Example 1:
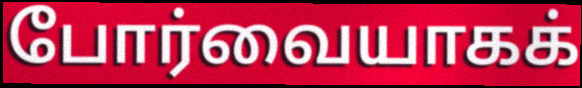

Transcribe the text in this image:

போர்வையாகக்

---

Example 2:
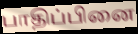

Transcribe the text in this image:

பாதிப்பினை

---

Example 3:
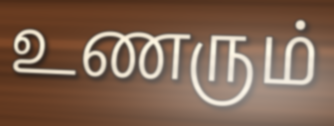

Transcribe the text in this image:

உணரும்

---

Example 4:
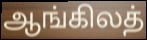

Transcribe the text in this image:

ஆங்கிலத்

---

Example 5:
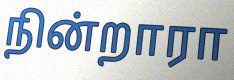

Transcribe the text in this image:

நின்றாரா